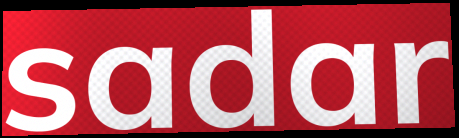
sadar